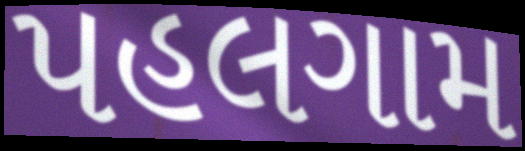
પહલગામ